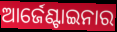
ଆର୍ଜେଣ୍ଟାଇନାର